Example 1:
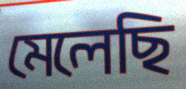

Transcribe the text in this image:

মেলেছি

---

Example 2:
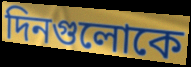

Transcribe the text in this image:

দিনগুলোকে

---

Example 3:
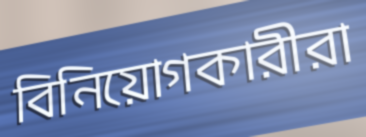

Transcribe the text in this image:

বিনিয়োগকারীরা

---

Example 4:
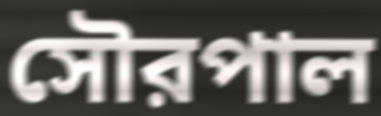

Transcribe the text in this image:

সৌরপাল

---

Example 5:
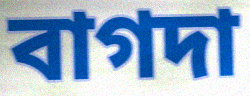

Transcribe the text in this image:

বাগদা